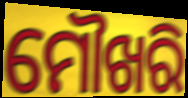
ମୌଖରି